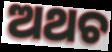
ଅଥଚ